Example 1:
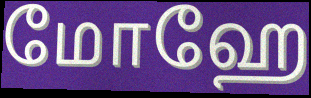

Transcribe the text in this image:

மோஹே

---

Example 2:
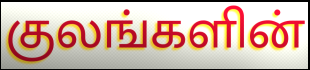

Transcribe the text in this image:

குலங்களின்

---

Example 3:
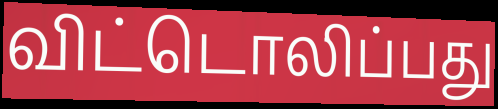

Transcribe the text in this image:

விட்டொலிப்பது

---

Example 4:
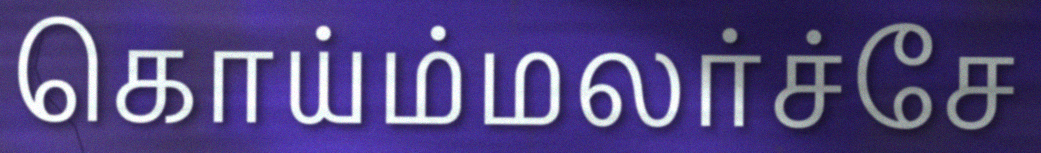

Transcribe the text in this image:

கொய்ம்மலர்ச்சே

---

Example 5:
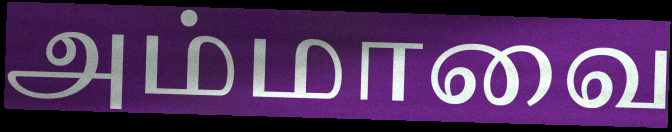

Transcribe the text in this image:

அம்மாவை